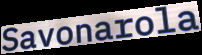
Savonarola